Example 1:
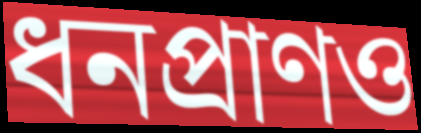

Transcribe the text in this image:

ধনপ্রাণও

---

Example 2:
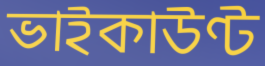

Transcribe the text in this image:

ভাইকাউণ্ট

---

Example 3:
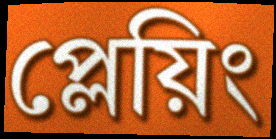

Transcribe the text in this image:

প্লেয়িং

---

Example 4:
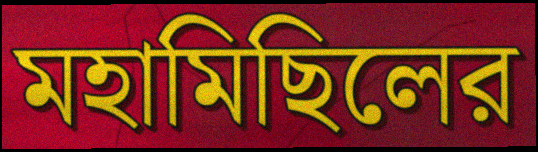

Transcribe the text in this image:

মহামিছিলের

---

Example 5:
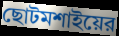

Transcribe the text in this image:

ছোটমশাইয়ের